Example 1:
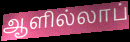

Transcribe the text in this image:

ஆளில்லாப்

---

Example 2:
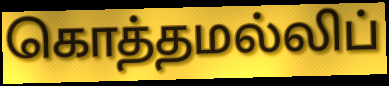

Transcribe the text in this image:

கொத்தமல்லிப்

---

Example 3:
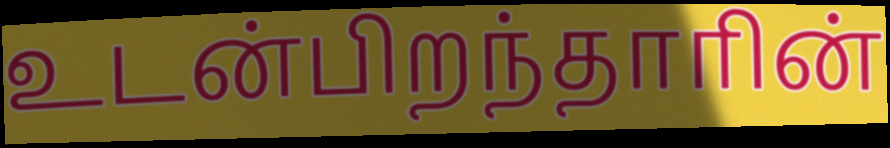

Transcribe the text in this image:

உடன்பிறந்தாரின்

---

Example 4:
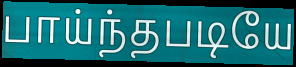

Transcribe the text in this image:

பாய்ந்தபடியே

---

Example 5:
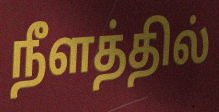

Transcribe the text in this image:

நீளத்தில்